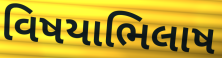
વિષયાભિલાષ